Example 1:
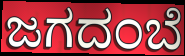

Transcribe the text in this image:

ಜಗದಂಬೆ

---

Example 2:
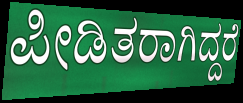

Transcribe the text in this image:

ಪೀಡಿತರಾಗಿದ್ದರೆ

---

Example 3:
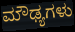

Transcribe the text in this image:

ಮೌಢ್ಯಗಳು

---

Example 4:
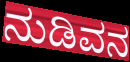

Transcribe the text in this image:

ನುಡಿವನ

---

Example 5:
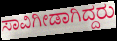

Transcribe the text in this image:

ಸಾವಿಗೀಡಾಗಿದ್ದರು